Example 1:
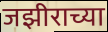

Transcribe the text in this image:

जझीराच्या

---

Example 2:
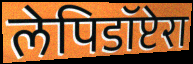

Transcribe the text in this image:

लेपिडॉप्टेरा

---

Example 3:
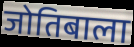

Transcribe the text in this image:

जोतिबाला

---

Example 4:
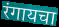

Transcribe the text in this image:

रंगायचा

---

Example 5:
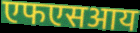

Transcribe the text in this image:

एफएसआय